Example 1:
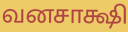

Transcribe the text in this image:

வனசாக்ஷி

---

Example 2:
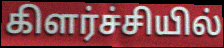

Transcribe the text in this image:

கிளர்ச்சியில்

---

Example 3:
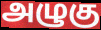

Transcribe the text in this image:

அழுகு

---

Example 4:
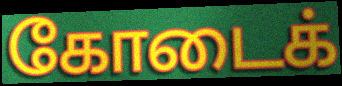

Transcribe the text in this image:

கோடைக்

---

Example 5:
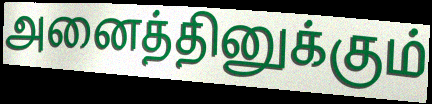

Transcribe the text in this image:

அனைத்தினுக்கும்